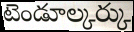
టెండూల్కర్కు